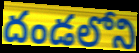
దండలోని